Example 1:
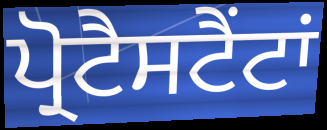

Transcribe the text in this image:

ਪ੍ਰੋਟੈਸਟੈਂਟਾਂ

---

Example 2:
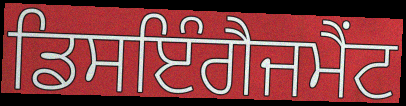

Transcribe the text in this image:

ਡਿਸਇੰਗੈਜਮੈਂਟ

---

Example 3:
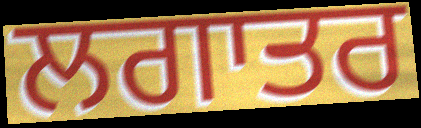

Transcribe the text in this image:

ਲਗਾਤਰ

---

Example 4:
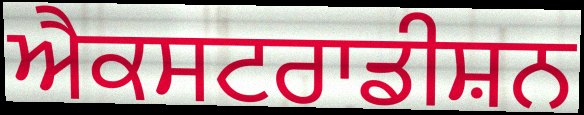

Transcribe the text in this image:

ਐਕਸਟਰਾਡੀਸ਼ਨ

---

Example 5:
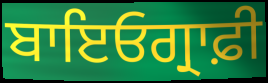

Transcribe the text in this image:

ਬਾਇਓਗ੍ਰਾਫ਼ੀ